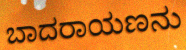
ಬಾದರಾಯಣನು